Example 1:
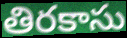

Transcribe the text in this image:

తిరకాసు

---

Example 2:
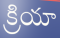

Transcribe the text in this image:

క్రియా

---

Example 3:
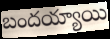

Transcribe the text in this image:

బందయ్యాయి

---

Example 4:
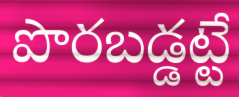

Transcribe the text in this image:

పొరబడ్డట్టే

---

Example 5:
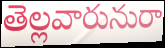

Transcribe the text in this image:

తెల్లవారునురా